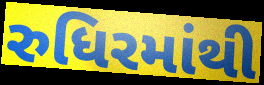
રુધિરમાંથી